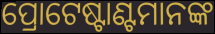
ପ୍ରୋଟେଷ୍ଟାଣ୍ଟମାନଙ୍କ